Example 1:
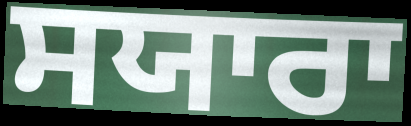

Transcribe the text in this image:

ਸਯਾਰਾ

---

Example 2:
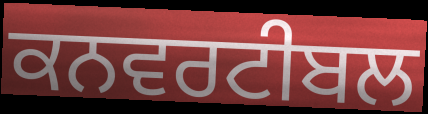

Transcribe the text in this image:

ਕਨਵਰਟੀਬਲ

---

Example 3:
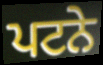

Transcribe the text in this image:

ਪਟਨੇ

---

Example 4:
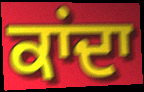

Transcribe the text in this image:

ਕਾਂਦਾ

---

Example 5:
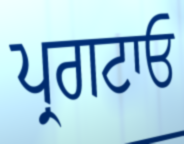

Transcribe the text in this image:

ਪ੍ਰਗਟਾਓ